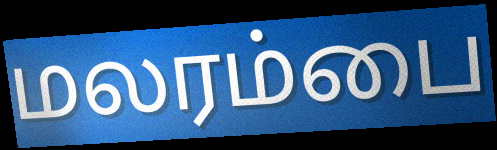
மலரம்பை